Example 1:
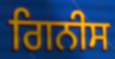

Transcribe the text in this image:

ਗਿਨੀਸ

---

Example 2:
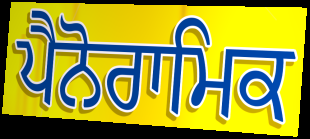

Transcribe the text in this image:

ਪੈਨੋਰਾਮਿਕ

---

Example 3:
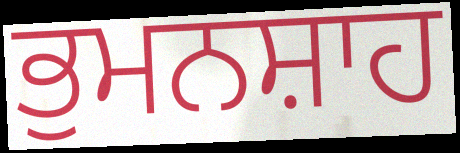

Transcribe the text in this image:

ਭੁਮਨਸ਼ਾਹ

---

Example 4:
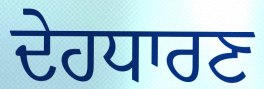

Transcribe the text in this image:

ਦੇਹਧਾਰਣ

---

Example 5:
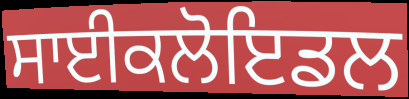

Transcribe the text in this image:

ਸਾਈਕਲੋਇਡਲ